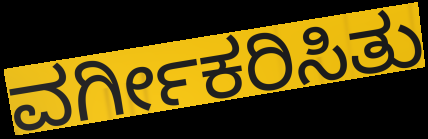
ವರ್ಗೀಕರಿಸಿತು